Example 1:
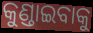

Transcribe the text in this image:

କୁଣ୍ଡାଇବାକୁ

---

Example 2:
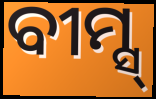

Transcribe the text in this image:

ବୀମ୍ସ୍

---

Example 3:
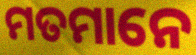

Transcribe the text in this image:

ମତମାନେ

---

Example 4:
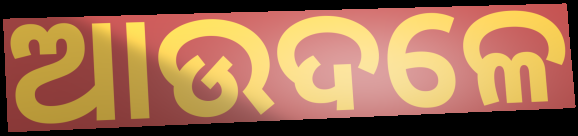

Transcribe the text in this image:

ଆଉଦଳେ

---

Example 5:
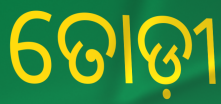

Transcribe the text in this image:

ତୋଡ଼ୀ